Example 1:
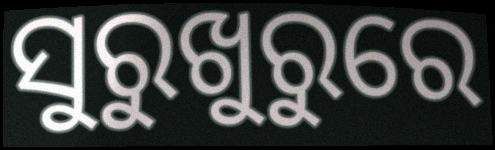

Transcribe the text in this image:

ସୁରୁଖୁରୁରେ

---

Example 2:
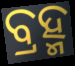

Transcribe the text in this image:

ବ୍ରହ୍ମ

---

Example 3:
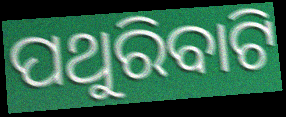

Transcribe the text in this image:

ପଥୁରିବାଟି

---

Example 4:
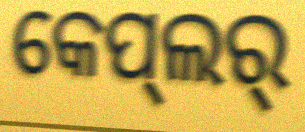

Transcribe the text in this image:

କେପ୍‌ଲର୍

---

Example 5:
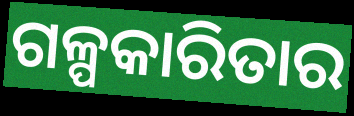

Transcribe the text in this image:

ଗଳ୍ପକାରିତାର